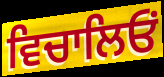
ਵਿਚਾਲਿਓਂ